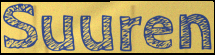
Suuren